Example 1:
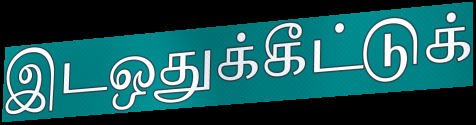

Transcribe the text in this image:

இடஒதுக்கீட்டுக்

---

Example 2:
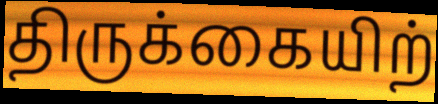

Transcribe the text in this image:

திருக்கையிற்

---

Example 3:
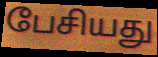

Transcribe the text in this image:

பேசியது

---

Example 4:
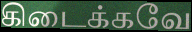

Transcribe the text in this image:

கிடைக்கவே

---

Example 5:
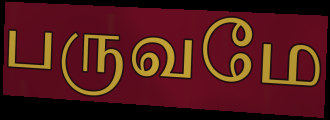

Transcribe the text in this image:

பருவமே